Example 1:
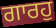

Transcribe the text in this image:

ਗਾਰਹੁ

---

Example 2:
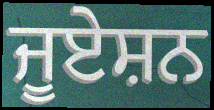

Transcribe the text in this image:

ਜੂਏਸ਼ਨ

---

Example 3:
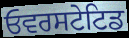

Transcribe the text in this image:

ਓਵਰਸਟੇਟਿਡ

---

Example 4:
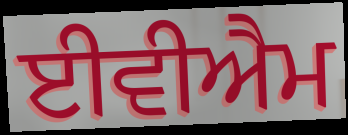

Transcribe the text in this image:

ਈਵੀਐਮ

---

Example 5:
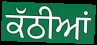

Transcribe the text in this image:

ਕੱਠੀਆਂ